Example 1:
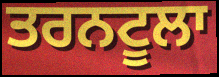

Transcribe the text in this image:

ਤਰਨਟੂਲਾ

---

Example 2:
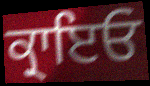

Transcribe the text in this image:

ਕ੍ਰਾਇਓ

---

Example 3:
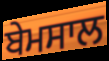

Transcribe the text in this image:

ਬੇਮਸਾਲ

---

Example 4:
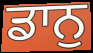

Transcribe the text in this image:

ਡਾਨੁ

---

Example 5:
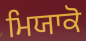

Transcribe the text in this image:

ਮਿਯਾਕੋ